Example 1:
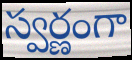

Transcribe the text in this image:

స్వర్ణంగా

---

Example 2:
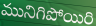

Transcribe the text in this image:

మునిగిపోయిరి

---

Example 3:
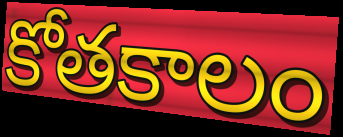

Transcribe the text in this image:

కోతకాలం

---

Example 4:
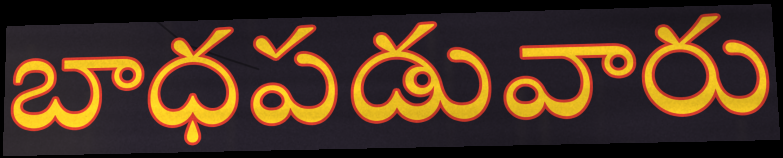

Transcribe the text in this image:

బాధపడువారు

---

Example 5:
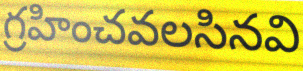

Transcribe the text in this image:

గ్రహించవలసినవి